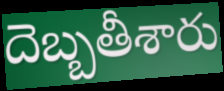
దెబ్బతీశారు